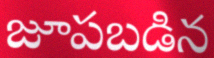
జూపబడిన